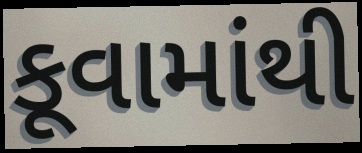
કૂવામાંથી